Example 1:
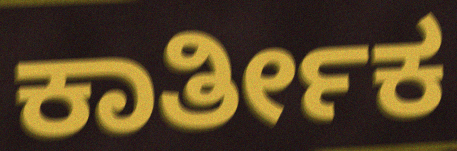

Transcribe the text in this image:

ಕಾರ್ತೀಕ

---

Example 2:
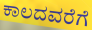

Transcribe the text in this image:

ಕಾಲದವರೆಗೆ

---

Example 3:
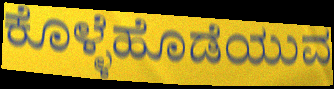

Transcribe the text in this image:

ಕೊಳ್ಳೆಹೊಡೆಯುವ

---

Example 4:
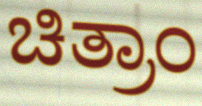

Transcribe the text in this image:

ಚಿತ್ರಾಂ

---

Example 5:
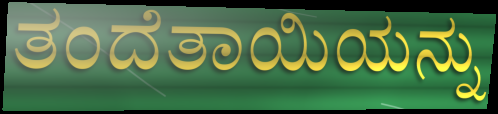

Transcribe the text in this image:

ತಂದೆತಾಯಿಯನ್ನು